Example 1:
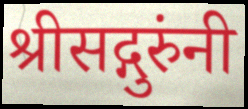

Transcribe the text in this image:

श्रीसद्गुरुंनी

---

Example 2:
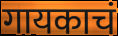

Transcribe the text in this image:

गायकाचं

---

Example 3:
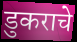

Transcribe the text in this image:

डुकराचे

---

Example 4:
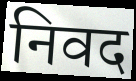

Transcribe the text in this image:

निवद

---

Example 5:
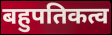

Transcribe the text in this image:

बहुपतिकत्व